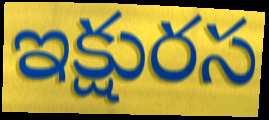
ఇక్షురస